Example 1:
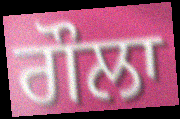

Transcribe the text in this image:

ਗੌਲਾ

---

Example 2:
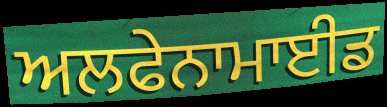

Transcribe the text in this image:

ਅਲਫੇਨਾਮਾਈਡ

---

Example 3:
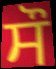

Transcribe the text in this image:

ਸੌ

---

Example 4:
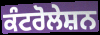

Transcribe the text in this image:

ਕੰਟਰੋਲੇਸ਼ਨ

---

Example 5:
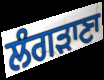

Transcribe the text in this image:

ਲੰਗੜਾਣਾ